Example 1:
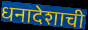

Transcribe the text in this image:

धनादेशाची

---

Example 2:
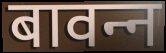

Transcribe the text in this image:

बावन्न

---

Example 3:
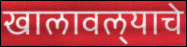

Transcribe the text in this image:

खालावल्याचे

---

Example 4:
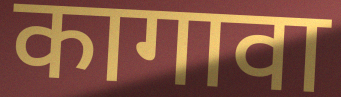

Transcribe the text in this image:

कागावा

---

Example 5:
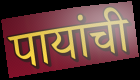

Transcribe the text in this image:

पायांची